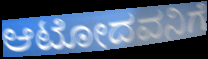
ಆಟೋದವನಿಗೆ